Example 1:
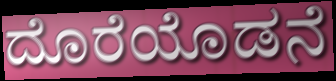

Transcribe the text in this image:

ದೊರೆಯೊಡನೆ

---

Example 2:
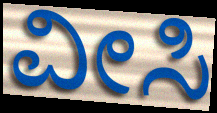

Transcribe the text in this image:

ವೀಸಿ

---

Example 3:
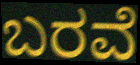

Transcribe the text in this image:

ಬರವೆ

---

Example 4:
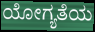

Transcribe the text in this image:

ಯೋಗ್ಯತೆಯ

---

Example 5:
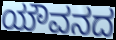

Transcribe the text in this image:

ಯೌವನದ